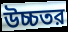
উচ্চতর